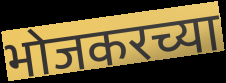
भोजकरच्या